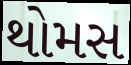
થોમસ